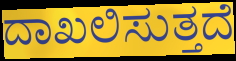
ದಾಖಲಿಸುತ್ತದೆ